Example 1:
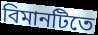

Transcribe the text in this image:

বিমানটিতে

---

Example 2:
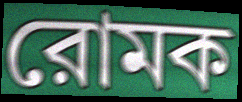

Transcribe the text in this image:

রোমক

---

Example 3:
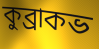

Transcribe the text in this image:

কুব্রাকভ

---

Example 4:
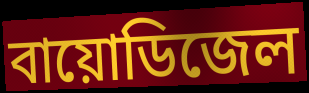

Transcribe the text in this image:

বায়োডিজেল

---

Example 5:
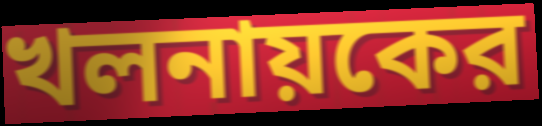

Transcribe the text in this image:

খলনায়কের